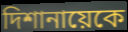
দিশানায়েকে